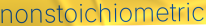
nonstoichiometric